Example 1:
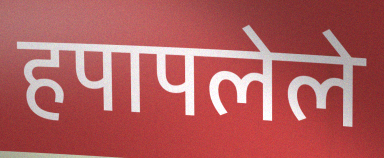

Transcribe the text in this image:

हपापलेले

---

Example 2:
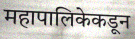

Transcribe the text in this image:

महापालिकेकडून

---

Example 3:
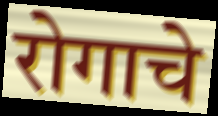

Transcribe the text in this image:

रोगाचे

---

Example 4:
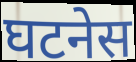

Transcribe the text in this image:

घटनेस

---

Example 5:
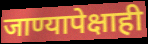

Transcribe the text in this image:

जाण्यापेक्षाही